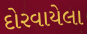
દોરવાયેલા